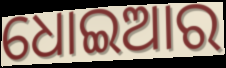
ଧୋଇଆର